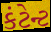
કંટેન્ટ